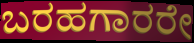
ಬರಹಗಾರರೇ